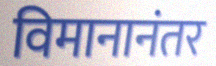
विमानानंतर